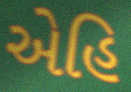
એહિ